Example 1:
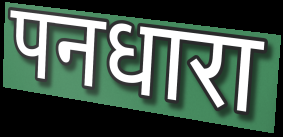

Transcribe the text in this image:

पनधारा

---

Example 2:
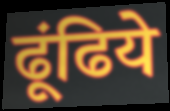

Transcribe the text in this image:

ढूंढिये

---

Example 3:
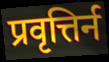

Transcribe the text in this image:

प्रवृत्तिर्न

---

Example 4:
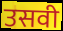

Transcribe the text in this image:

उसवी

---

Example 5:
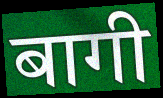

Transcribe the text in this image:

बागी